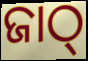
ଜାଠ୍